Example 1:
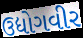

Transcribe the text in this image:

ઉદ્યોગવીર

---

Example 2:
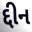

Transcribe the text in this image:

દ્દીન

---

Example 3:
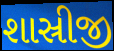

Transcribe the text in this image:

શાસ્રીજી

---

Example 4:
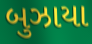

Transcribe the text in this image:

બુઝાયા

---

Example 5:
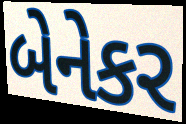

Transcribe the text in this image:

બેનેકર